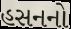
હસનનો